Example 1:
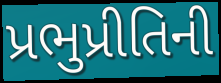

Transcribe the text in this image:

પ્રભુપ્રીતિની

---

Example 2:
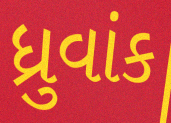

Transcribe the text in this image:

ધ્રુવાંક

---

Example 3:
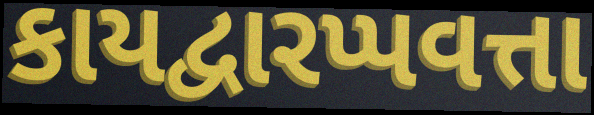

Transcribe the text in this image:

કાયદ્વારપ્પવત્તા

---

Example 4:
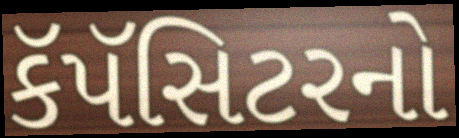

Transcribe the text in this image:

કૅપૅસિટરનો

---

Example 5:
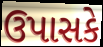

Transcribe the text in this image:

ઉપાસકે